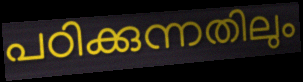
പഠിക്കുന്നതിലും